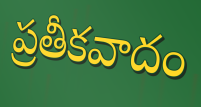
ప్రతీకవాదం